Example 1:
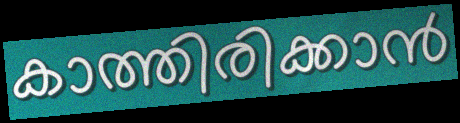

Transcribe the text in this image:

കാത്തിരിക്കാൻ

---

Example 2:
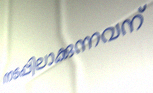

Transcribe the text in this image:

നടപ്പിലാക്കുന്നവന്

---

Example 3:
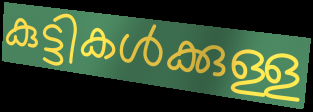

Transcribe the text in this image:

കുട്ടികൾക്കുള്ള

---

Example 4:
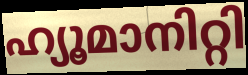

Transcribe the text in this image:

ഹ്യൂമാനിറ്റി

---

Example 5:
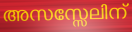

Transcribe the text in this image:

അസസ്സേലിന്